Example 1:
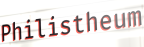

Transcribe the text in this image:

Philistheum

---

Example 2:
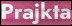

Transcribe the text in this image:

Prajkta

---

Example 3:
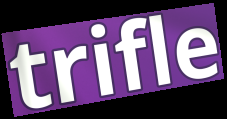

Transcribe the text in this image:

trifle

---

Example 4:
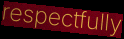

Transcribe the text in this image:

respectfully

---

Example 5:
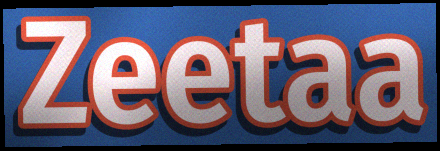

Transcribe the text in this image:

Zeetaa